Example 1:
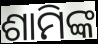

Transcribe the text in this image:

ଶାମିଙ୍କ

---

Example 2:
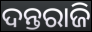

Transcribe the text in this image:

ଦନ୍ତରାଜି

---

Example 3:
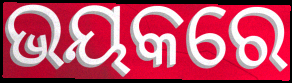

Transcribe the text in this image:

ଭୟକରେ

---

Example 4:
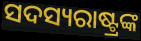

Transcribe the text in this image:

ସଦସ୍ୟରାଷ୍ଟ୍ରଙ୍କ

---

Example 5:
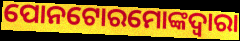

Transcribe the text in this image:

ପୋନଟୋରମୋଙ୍କଦ୍ୱାରା